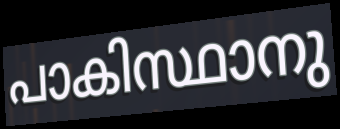
പാകിസ്ഥാനു